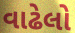
વાઢેલો